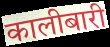
कालीबारी